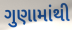
ગુણામાંથી